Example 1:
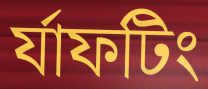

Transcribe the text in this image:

র্যাফটিং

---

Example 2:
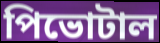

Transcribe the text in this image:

পিভোটাল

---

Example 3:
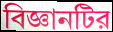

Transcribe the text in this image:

বিজ্ঞানটির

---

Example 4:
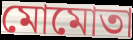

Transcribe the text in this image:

মোমোতা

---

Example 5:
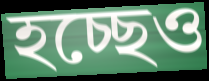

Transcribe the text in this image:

হচ্ছেও